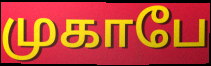
முகாபே